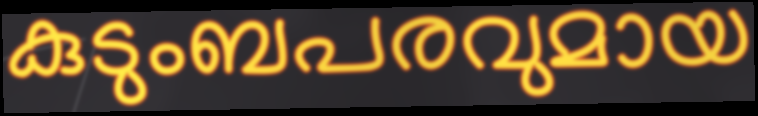
കുടുംബപരവുമായ